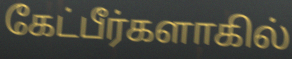
கேட்பீர்களாகில்